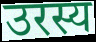
उरस्य